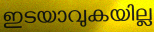
ഇടയാവുകയില്ല